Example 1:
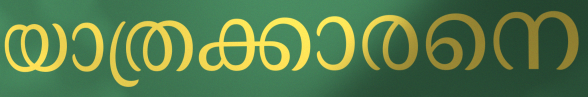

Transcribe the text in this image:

യാത്രക്കാരനെ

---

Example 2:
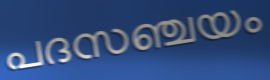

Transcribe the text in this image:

പദസഞ്ചയം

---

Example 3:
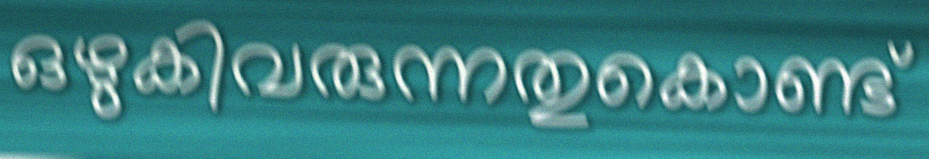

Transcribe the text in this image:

ഒഴുകിവരുന്നതുകൊണ്ട്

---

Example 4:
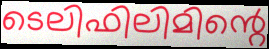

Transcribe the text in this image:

ടെലിഫിലിമിന്റെ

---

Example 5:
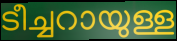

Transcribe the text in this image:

ടീച്ചറായുള്ള